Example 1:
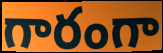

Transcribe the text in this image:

గారంగా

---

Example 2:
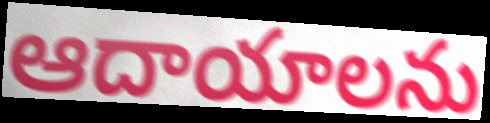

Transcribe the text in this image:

ఆదాయాలను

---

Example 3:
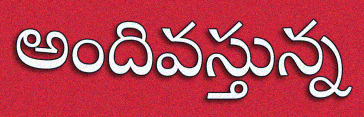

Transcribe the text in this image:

అందివస్తున్న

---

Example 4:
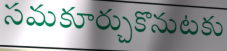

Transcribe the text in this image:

సమకూర్చుకొనుటకు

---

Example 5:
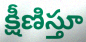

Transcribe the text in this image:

క్షీణిస్తూ